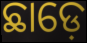
ଛାଡ଼େ